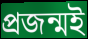
প্রজন্মই